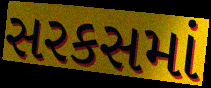
સરકસમાં